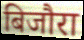
बिजौरा